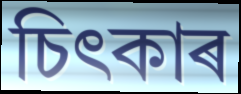
চিৎকাৰ